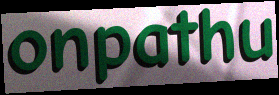
onpathu